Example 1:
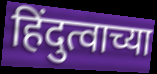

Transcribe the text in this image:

हिंदुत्वाच्या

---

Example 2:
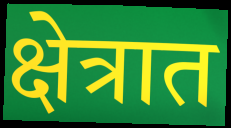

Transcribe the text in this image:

क्षेत्रात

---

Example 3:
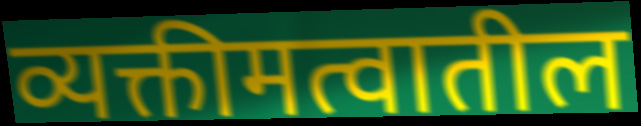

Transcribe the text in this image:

व्यक्तीमत्वातील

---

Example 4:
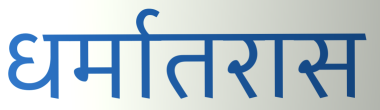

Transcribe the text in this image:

धर्मातरास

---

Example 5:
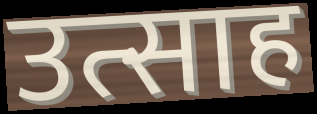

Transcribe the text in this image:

उत्साह